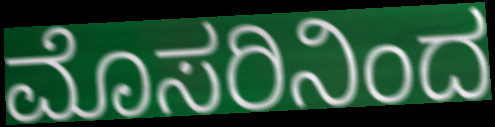
ಮೊಸರಿನಿಂದ